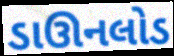
ડાઊનલોડ